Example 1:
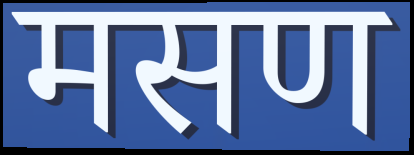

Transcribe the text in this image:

मसण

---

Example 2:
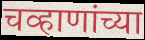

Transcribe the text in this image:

चव्हाणांच्या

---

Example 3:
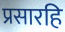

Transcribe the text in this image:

प्रसारहि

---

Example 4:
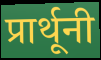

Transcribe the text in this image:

प्रार्थूनी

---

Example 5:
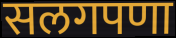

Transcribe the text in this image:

सलगपणा